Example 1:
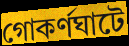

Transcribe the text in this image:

গোকর্ণঘাটে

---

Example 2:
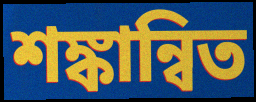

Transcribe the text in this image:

শঙ্কান্বিত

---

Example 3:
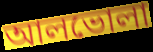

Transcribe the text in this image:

আলভোলা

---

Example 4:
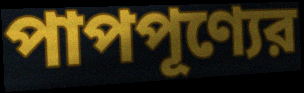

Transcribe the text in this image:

পাপপূণ্যের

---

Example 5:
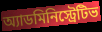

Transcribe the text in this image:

অ্যাডমিনিস্ট্রেটিভ